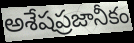
అశేషప్రజానీకం